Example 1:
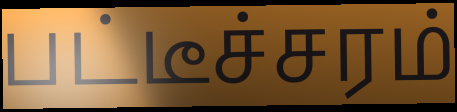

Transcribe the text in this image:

பட்டீச்சரம்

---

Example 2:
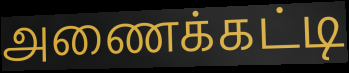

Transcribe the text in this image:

அணைக்கட்டி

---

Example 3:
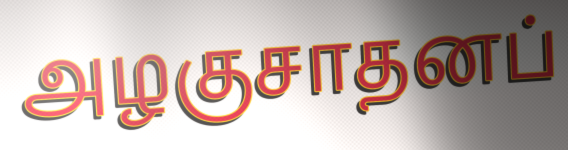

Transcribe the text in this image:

அழகுசாதனப்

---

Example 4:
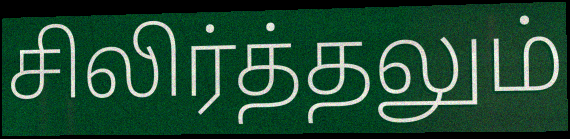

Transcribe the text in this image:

சிலிர்த்தலும்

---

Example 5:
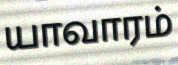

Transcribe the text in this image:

யாவாரம்